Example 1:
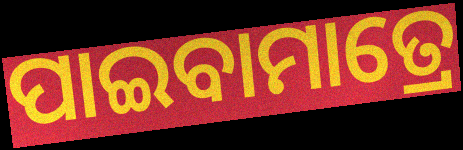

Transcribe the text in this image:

ପାଇବାମାତ୍ରେ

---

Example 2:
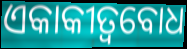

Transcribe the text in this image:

ଏକାକୀତ୍ୱବୋଧ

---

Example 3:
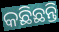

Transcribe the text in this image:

କଛିଛନ୍ତି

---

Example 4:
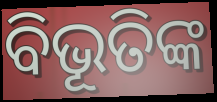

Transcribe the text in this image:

ବିଭୂତିଙ୍କ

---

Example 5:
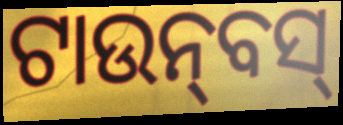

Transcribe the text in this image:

ଟାଉନ୍‍ବସ୍